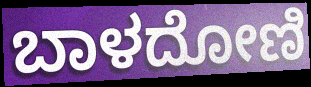
ಬಾಳದೋಣಿ